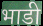
भाडी